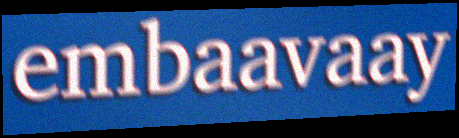
embaavaay